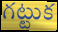
గట్టుక